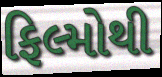
ફિલ્મોથી